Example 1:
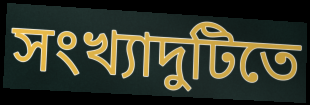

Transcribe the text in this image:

সংখ্যাদুটিতে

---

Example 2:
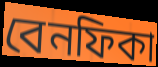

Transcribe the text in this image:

বেনফিকা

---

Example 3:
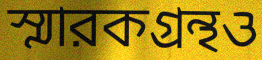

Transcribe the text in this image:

স্মারকগ্রন্থও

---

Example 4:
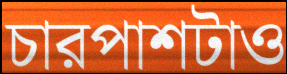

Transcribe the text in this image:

চারপাশটাও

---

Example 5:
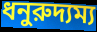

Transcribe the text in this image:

ধনুরুদ্যম্য